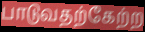
பாடுவதற்கேற்ற